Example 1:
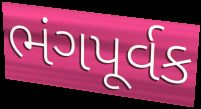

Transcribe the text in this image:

ભંગપૂર્વક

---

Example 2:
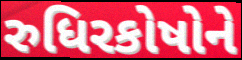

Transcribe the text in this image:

રુધિરકોષોને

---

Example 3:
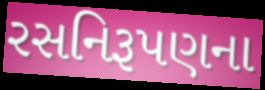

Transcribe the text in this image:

રસનિરૂપણના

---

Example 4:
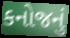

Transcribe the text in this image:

કનોજનું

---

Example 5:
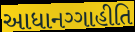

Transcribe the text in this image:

આધાનગ્ગાહીતિ